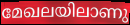
മേഖലയിലാണു